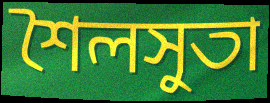
শৈলসুতা